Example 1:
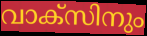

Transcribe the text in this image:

വാക്സിനും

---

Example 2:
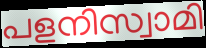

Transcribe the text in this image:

പളനിസ്വാമി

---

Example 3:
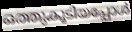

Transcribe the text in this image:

ഒത്തുകൂടിയപ്പോൾ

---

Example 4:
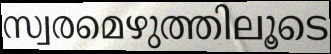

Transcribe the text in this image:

സ്വരമെഴുത്തിലൂടെ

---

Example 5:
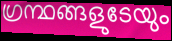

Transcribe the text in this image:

ഗ്രന്ഥങ്ങളുടേയും